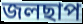
জলছাপ